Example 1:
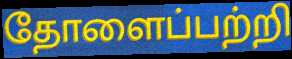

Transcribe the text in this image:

தோளைப்பற்றி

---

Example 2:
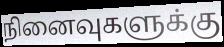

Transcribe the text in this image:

நினைவுகளுக்கு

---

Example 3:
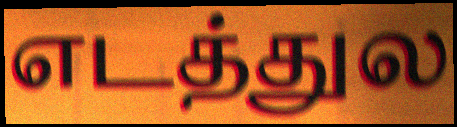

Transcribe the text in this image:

எடத்துல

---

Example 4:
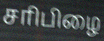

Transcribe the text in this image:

சரிபிழை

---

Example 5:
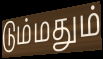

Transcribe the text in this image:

டும்மதும்